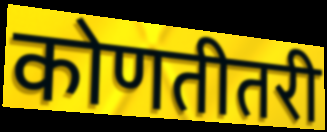
कोणतीतरी